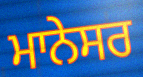
ਮਾਨੇਸਰ